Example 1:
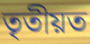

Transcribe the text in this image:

তৃতীয়ত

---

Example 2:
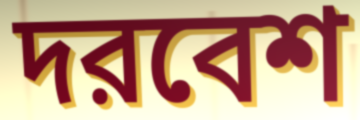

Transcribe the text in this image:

দরবেশ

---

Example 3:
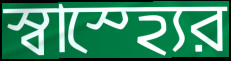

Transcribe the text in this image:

স্বাস্হ্যের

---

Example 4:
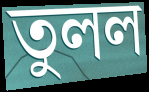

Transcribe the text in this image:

তুলল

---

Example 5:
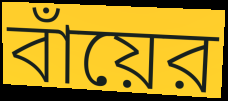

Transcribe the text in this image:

বাঁয়ের